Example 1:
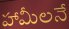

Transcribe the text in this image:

హామీలనే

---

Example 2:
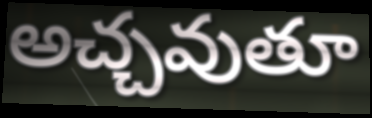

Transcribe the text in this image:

అచ్చవుతూ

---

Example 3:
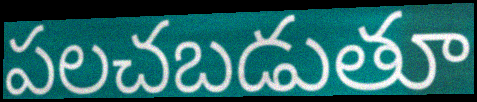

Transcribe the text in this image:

పలచబడుతూ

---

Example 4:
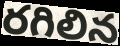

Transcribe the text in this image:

రగిలిన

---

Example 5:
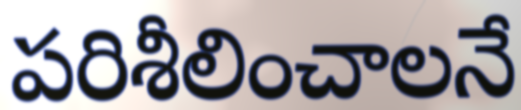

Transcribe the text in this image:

పరిశీలించాలనే